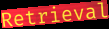
Retrieval